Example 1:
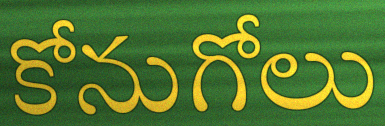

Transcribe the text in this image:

కోనుగోలు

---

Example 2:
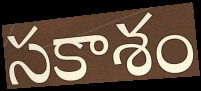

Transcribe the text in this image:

సకాశం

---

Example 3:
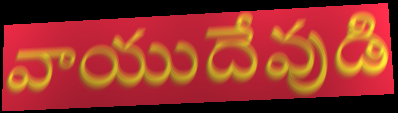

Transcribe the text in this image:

వాయుదేవుడి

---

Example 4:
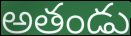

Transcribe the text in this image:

అతండు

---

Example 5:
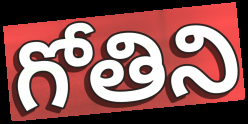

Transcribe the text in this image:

గోతిని